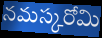
నమస్కరోమి